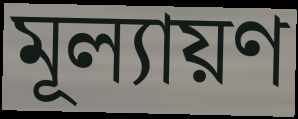
মূল্যায়ণ